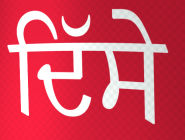
ਦਿੱਸੇ